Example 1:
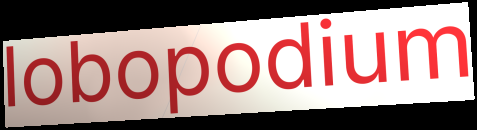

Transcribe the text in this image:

lobopodium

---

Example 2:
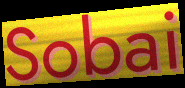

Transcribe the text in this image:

Sobai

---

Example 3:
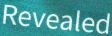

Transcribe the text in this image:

Revealed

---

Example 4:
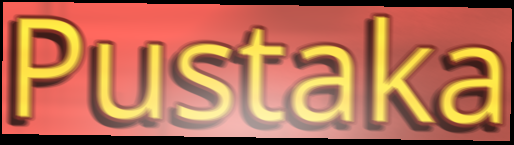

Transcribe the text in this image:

Pustaka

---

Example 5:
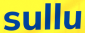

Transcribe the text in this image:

sullu